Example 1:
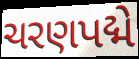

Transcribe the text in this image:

ચરણપદ્મે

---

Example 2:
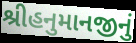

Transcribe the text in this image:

શ્રીહનુમાનજીનું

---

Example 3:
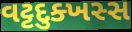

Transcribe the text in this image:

વટ્ટદુક્ખસ્સ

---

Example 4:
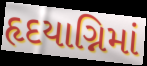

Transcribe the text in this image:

હૃદયાગ્નિમાં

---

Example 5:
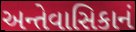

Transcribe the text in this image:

અન્તેવાસિકાનં